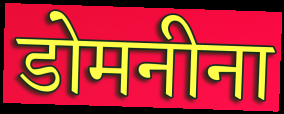
डोमनीना